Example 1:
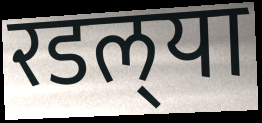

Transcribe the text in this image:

रडल्या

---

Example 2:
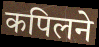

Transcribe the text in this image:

कपिलने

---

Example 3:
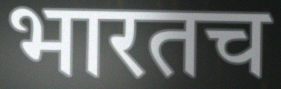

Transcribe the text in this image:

भारतच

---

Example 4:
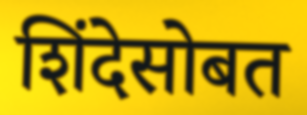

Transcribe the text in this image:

शिंदेसोबत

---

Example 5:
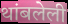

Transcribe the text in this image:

थांबलेली